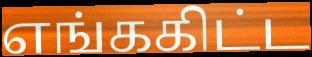
எங்ககிட்ட